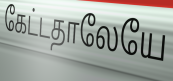
கேட்டதாலேயே